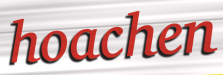
hoachen